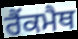
ਰੈਂਕਮੈਥ